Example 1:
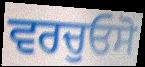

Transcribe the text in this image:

ਵਰਚੁਓਸੋ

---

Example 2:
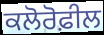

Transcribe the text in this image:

ਕਲੋਰੋਫ਼ੀਲ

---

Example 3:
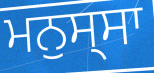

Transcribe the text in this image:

ਮਨੁਸ੍ਸਾ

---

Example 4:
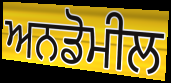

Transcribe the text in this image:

ਅਨਡੋਮੀਲ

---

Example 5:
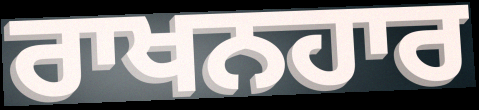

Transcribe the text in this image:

ਰਾਖਨਹਾਰ